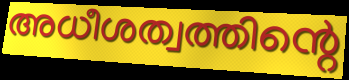
അധീശത്വത്തിന്റെ